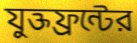
যুক্তফ্রন্টের